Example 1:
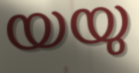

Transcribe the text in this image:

യയു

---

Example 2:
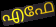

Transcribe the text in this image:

എഫേ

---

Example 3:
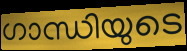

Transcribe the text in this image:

ഗാന്ധിയുടെ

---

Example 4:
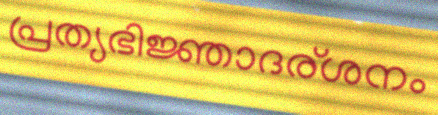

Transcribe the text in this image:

പ്രത്യഭിജ്ഞാദര്ശനം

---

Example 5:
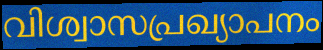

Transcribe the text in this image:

വിശ്വാസപ്രഖ്യാപനം